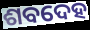
ଶବଦେହ